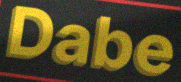
Dabe